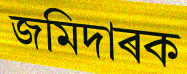
জমিদাৰক